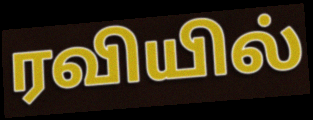
ரவியில்